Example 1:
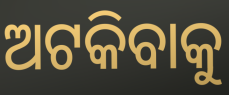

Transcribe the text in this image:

ଅଟକିବାକୁ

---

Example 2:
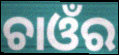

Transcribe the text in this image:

ଚାଓଁର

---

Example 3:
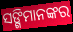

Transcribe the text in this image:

ସଙ୍ଗିମାନଙ୍କର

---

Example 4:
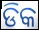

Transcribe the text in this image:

ଡିକ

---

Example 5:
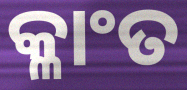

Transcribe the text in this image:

କ୍ଳାଂତ